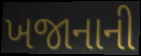
ખજાનાની